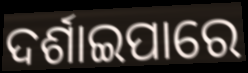
ଦର୍ଶାଇପାରେ